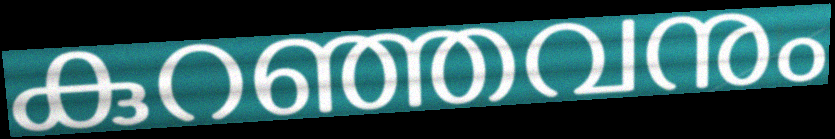
കുറഞ്ഞവനും